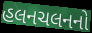
હલનચલનનો